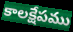
కాలక్షేపము